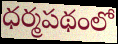
ధర్మపథంలో